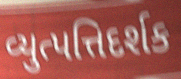
વ્યુત્પત્તિદર્શક